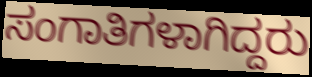
ಸಂಗಾತಿಗಳಾಗಿದ್ದರು